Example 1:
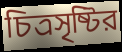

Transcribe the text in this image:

চিত্রসৃষ্টির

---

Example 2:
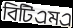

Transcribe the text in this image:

বিটিএমএ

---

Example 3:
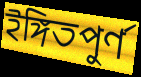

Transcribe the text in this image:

ইঙ্গিতপুর্ণ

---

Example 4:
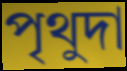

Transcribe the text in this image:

পৃথুদা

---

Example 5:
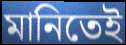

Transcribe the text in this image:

মানিতেই